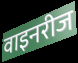
वाइनरीज